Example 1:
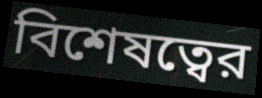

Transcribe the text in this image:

বিশেষত্বের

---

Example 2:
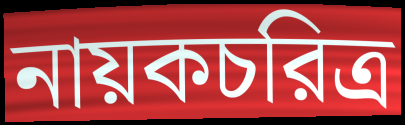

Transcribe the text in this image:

নায়কচরিত্র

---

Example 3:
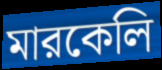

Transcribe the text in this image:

মারকেলি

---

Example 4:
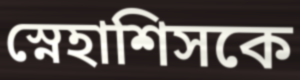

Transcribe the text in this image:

স্নেহাশিসকে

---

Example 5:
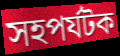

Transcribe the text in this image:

সহপর্যটক